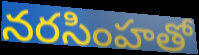
నరసింహతో